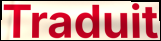
Traduit